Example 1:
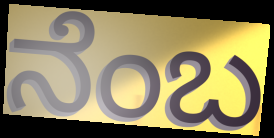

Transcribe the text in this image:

ನೆಂಬ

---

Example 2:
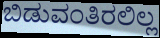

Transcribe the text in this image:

ಬಿಡುವಂತಿರಲಿಲ್ಲ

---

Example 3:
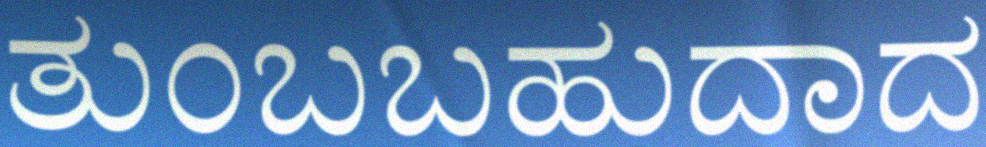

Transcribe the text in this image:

ತುಂಬಬಹುದಾದ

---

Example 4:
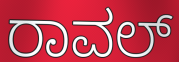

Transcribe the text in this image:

ರಾವಲ್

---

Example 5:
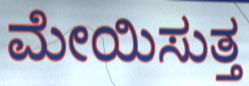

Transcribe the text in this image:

ಮೇಯಿಸುತ್ತ